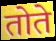
तोते